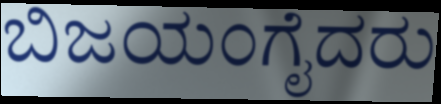
ಬಿಜಯಂಗೈದರು